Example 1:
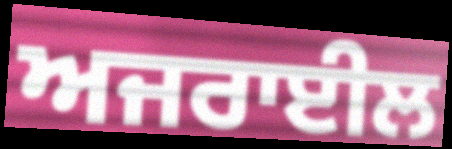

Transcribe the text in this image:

ਅਜਰਾਈਲ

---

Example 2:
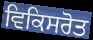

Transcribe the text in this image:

ਵਿਕਿਸਰੋਤ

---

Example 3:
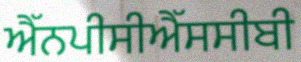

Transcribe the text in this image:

ਐੱਨਪੀਸੀਐੱਸਸੀਬੀ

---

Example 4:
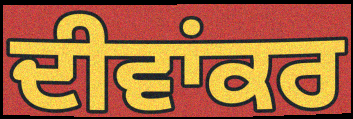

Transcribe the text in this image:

ਦੀਵਾਂਕਰ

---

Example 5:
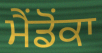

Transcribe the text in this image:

ਮੈਂਡੋਂਕਾ